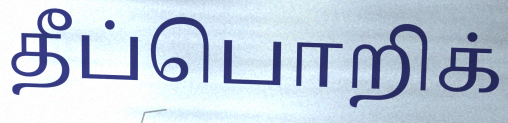
தீப்பொறிக்